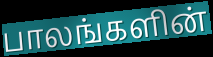
பாலங்களின்